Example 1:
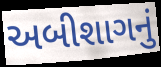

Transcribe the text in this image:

અબીશાગનું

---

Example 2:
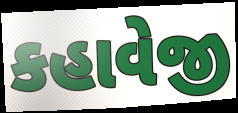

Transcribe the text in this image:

કહાવેજી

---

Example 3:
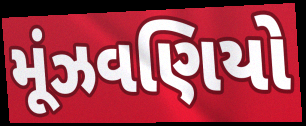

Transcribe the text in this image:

મૂંઝવણિયો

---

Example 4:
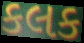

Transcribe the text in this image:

કલક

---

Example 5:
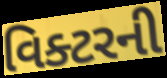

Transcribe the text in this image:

વિક્ટરની